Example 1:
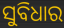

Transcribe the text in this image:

ସୁବିଧାର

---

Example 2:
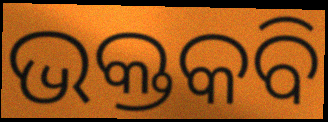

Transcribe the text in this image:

ଭକ୍ତକବି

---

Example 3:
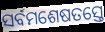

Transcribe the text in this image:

ସର୍ବମଶେଷତସ୍ତେ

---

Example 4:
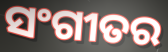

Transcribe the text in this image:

ସଂଗୀତର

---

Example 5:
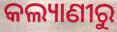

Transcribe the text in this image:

କଲ୍ୟାଣୀରୁ